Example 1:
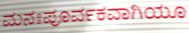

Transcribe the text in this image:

ಮನಃಪೂರ್ವಕವಾಗಿಯೂ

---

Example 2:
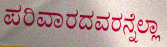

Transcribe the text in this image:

ಪರಿವಾರದವರನ್ನೆಲ್ಲಾ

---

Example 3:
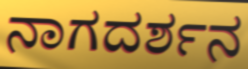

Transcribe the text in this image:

ನಾಗದರ್ಶನ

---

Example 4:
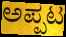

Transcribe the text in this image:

ಅಪ್ಪಟ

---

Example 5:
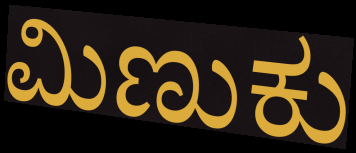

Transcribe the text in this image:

ಮಿಣುಕು